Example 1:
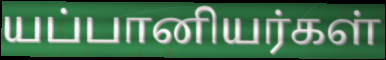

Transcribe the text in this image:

யப்பானியர்கள்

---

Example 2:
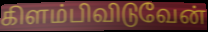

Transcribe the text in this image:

கிளம்பிவிடுவேன்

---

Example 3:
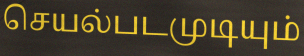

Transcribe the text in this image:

செயல்படமுடியும்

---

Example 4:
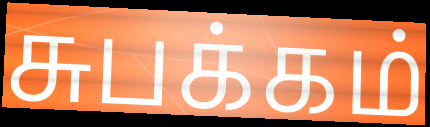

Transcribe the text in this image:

சுபக்கம்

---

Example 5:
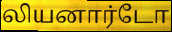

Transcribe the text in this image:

லியனார்டோ